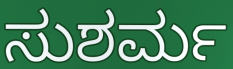
ಸುಶರ್ಮ